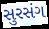
સુરસંગ